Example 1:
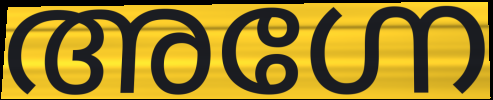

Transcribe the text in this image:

അഗ്നേ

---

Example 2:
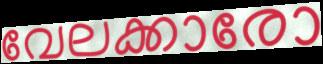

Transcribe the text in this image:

വേലക്കാരോ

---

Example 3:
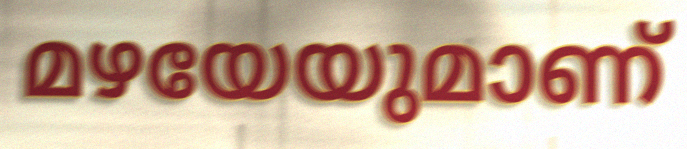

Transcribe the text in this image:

മഴയേയുമാണ്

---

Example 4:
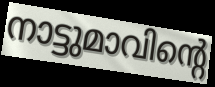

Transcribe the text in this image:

നാട്ടുമാവിന്റെ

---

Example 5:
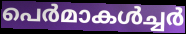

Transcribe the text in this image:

പെർമാകൾച്ചർ